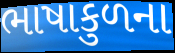
ભાષાકુળના